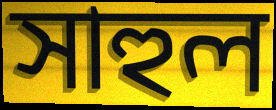
সাহুল